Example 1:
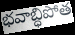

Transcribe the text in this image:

భవాబ్ధిపోత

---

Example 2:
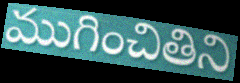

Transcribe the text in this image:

ముగించితిని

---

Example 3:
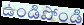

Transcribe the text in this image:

ఉండిపోండి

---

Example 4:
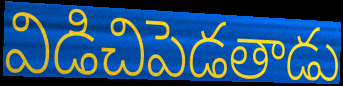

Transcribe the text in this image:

విడిచిపెడతాడు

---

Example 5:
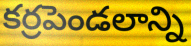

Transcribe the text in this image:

కర్రపెండలాన్ని